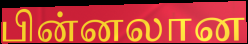
பின்னலான